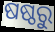
ଷଷ୍ଠରୁ